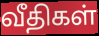
வீதிகள்